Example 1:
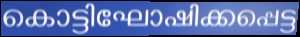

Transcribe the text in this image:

കൊട്ടിഘോഷിക്കപ്പെട്ട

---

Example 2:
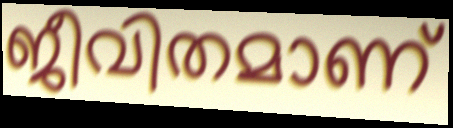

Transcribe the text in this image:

ജീവിതമാണ്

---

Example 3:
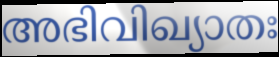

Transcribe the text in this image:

അഭിവിഖ്യാതഃ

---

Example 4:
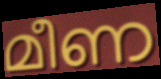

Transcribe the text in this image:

മീണ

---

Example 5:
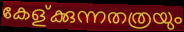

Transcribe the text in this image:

കേള്ക്കുന്നതത്രയും